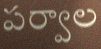
పర్వాల